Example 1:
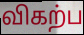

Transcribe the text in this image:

விகற்ப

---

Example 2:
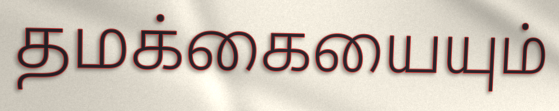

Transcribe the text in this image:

தமக்கையையும்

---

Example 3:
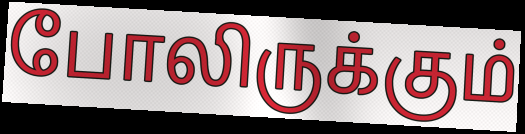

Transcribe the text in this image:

போலிருக்கும்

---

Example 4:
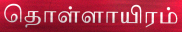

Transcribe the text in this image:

தொள்ளாயிரம்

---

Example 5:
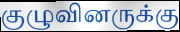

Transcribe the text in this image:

குழுவினருக்கு